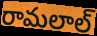
రామలాల్